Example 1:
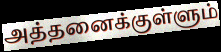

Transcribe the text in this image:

அத்தனைக்குள்ளும்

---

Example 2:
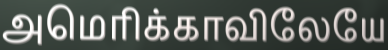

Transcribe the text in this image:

அமெரிக்காவிலேயே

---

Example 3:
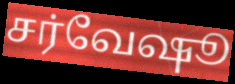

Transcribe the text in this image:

சர்வேஷூ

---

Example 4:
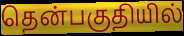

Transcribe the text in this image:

தென்பகுதியில்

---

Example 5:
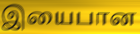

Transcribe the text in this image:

இயைபான